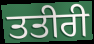
ਤਤੀਰੀ